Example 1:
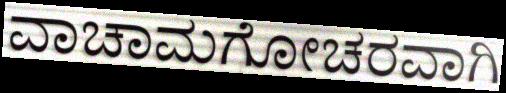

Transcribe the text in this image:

ವಾಚಾಮಗೋಚರವಾಗಿ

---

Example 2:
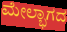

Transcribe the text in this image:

ಮೇಲ್ಭಾಗದ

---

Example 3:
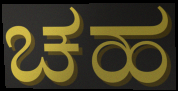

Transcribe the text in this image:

ಚಹ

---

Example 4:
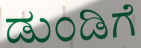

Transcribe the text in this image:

ಡುಂಡಿಗೆ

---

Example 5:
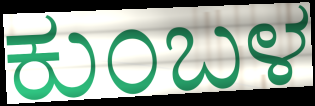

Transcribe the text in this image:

ಕುಂಬಳ